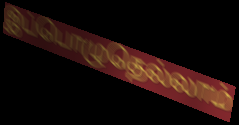
இப்பொழுதெல்லாம்